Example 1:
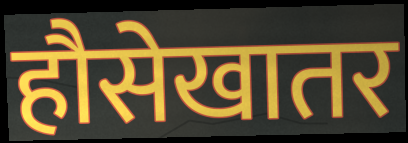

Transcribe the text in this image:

हौसेखातर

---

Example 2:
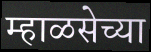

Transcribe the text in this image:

म्हाळसेच्या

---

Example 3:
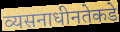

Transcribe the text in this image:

व्यसनाधीनतेकडे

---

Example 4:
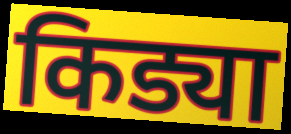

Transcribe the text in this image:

किड्या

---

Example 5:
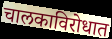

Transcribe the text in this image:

चालकाविरोधात